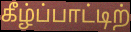
கீழ்ப்பாட்டிற்